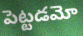
పెట్టడమో